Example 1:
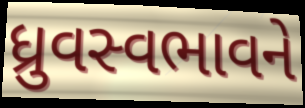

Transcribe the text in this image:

ધ્રુવસ્વભાવને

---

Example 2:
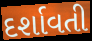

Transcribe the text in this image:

દર્શાવતી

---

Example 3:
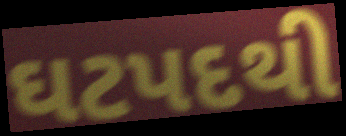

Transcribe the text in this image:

ઘટપદથી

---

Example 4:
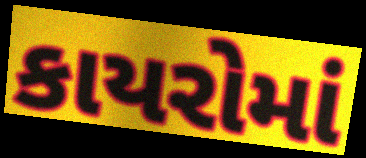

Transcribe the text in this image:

કાયરોમાં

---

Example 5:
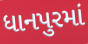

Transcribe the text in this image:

ધાનપુરમાં